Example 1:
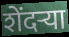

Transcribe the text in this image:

शेंदर्‍या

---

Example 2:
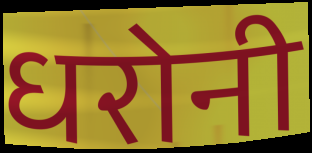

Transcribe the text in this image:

धरोनी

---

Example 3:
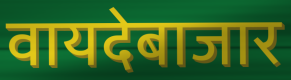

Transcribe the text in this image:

वायदेबाजार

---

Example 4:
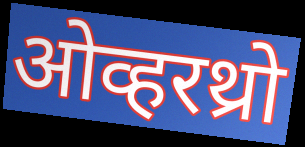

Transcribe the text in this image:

ओव्हरथ्रो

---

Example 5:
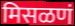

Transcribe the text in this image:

मिसळणं